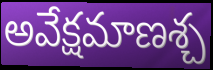
అవేక్షమాణశ్చ